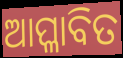
ଆପ୍ଳାବିତ